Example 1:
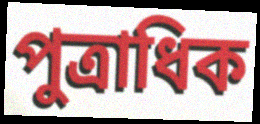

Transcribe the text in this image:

পুত্রাধিক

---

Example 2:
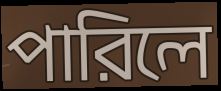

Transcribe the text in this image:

পারিলে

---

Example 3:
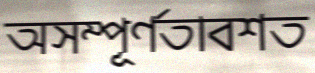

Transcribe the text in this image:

অসম্পূর্ণতাবশত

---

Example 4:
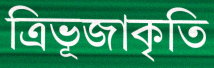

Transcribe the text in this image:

ত্রিভূজাকৃতি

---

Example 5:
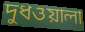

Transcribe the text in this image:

দুধওয়ালা